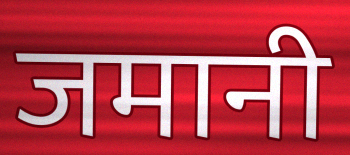
जमानी